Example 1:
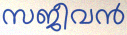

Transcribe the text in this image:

സജീവൻ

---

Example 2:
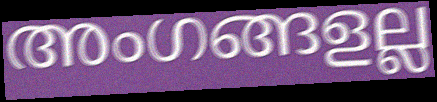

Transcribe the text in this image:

അംഗങ്ങളല്ല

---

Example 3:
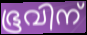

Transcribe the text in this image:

ഭൂവിന്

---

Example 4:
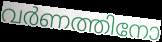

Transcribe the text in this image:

വർണത്തിനോ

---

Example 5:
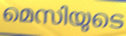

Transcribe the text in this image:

മെസിയുടെ